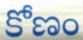
కోణం